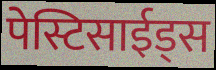
पेस्टिसाईड्स